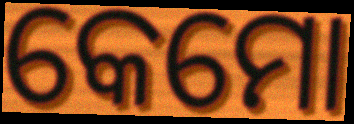
କେମୋ